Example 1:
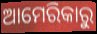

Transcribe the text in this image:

ଆମେରିକାରୁ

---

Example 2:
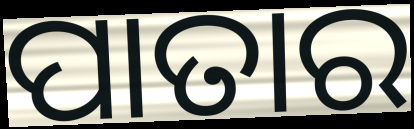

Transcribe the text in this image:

ପାତାର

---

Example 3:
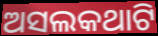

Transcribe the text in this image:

ଅସଲକଥାଟି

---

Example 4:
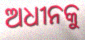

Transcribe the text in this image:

ଅଧୀନକୁ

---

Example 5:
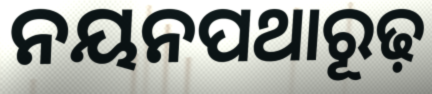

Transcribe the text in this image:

ନୟନପଥାରୂଢ଼